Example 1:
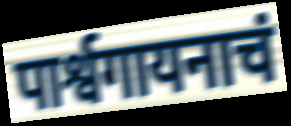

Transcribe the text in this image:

पार्श्वगायनाचं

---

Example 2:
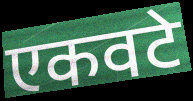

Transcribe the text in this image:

एकवटे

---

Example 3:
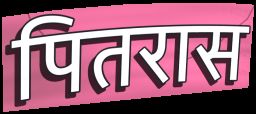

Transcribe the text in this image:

पितरास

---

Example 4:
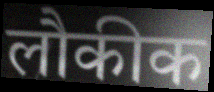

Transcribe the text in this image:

लौकीक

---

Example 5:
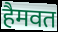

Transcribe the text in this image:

हैमवत